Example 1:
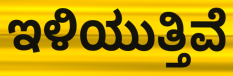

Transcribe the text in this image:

ಇಳಿಯುತ್ತಿವೆ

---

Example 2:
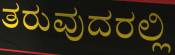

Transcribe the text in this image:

ತರುವುದರಲ್ಲಿ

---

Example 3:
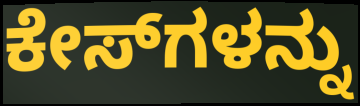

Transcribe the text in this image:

ಕೇಸ್‌ಗಳನ್ನು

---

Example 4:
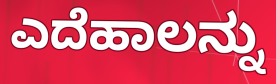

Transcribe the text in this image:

ಎದೆಹಾಲನ್ನು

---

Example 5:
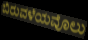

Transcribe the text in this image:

ಬಿರುವಳೆಯವೊಲು